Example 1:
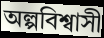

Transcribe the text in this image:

অল্পবিশ্বাসী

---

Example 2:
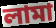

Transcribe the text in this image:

লামা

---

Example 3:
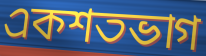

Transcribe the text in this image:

একশতভাগ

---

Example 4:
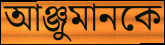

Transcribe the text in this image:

আঞ্জুমানকে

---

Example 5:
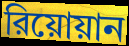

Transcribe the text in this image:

রিয়োয়ান